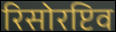
रिसोरप्टिव